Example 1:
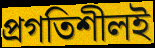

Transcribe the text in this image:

প্রগতিশীলই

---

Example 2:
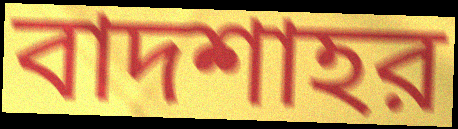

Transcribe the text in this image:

বাদশাহর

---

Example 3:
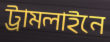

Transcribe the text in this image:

ট্রামলাইনে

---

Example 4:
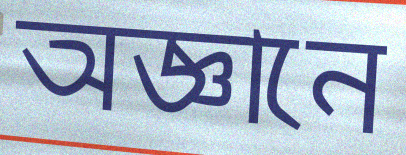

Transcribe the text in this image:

অজ্ঞানে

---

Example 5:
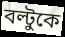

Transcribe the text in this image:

বল্টুকে